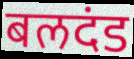
बलदंड